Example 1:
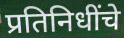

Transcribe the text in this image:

प्रतिनिधींचे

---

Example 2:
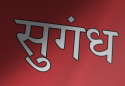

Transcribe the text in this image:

सुगंध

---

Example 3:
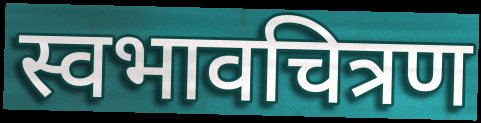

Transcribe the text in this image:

स्वभावचित्रण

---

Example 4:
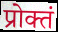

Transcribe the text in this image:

प्रोक्तं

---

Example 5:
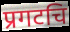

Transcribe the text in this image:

प्रगटचि